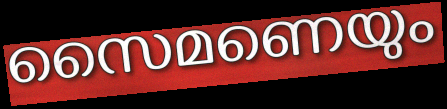
സൈമണെയും